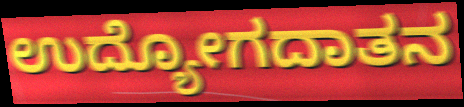
ಉದ್ಯೋಗದಾತನ